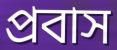
প্রবাস